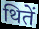
थितें